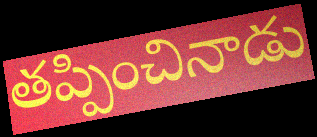
తప్పించినాడు